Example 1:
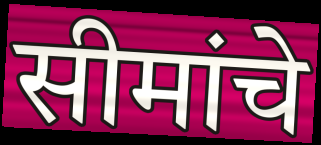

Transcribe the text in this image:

सीमांचे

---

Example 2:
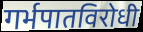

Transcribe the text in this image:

गर्भपातविरोधी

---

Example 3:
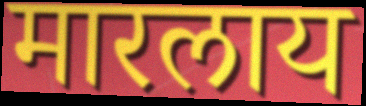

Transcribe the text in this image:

मारलाय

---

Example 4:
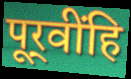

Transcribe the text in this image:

पूर्वींहि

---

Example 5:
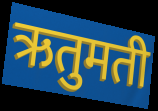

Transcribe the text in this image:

ऋतुमती